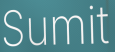
Sumit